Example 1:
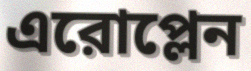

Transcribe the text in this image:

এরোপ্লেন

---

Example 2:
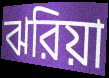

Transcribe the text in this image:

ঝরিয়া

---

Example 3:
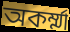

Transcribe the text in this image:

অকর্ম্মা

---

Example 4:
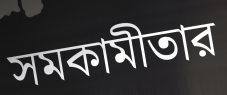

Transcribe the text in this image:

সমকামীতার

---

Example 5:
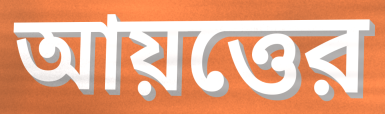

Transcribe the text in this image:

আয়ত্তের